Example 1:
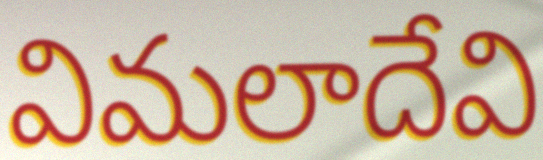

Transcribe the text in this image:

విమలాదేవి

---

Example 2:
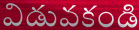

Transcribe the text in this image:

విడువకండి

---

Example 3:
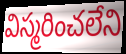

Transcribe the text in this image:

విస్మరించలేని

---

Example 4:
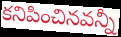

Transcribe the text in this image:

కనిపించినవన్నీ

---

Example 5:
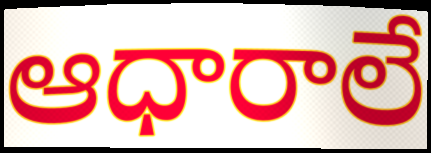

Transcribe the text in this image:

ఆధారాలే